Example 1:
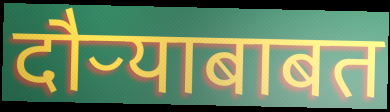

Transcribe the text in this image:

दौऱ्याबाबत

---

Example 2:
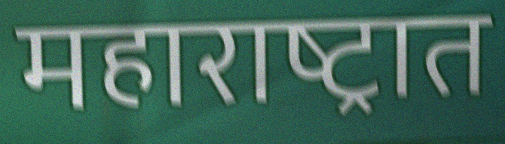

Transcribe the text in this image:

महाराष्ट्रात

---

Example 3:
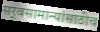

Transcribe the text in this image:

सर्वसामान्यांसाठीच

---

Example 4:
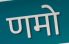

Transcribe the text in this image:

णमो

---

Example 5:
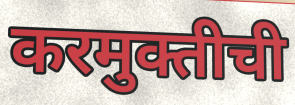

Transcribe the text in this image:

करमुक्तीची